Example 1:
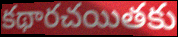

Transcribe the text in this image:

కథారచయితకు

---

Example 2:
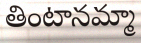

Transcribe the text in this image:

తింటానమ్మా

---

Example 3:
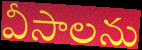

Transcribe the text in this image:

వీసాలను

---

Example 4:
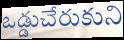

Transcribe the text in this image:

ఒడ్డుచేరుకుని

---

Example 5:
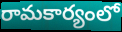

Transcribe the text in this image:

రామకార్యంలో